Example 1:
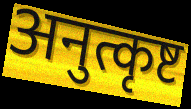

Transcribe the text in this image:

अनुत्कृष्ट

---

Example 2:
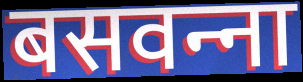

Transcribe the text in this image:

बसवन्ना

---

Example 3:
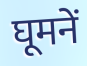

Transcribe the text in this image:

घूमनें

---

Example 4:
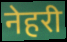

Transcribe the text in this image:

नेहरी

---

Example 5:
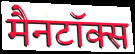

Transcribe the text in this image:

मैनटॉक्स